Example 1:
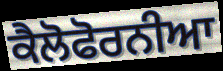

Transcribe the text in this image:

ਕੈਲੋਫੋਰਨੀਆ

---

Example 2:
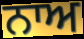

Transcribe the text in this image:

ਨਾਅ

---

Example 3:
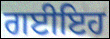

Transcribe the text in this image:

ਗਈਇਹ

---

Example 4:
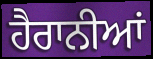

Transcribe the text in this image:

ਹੈਰਾਨੀਆਂ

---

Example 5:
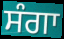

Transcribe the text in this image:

ਸੰਗਾ